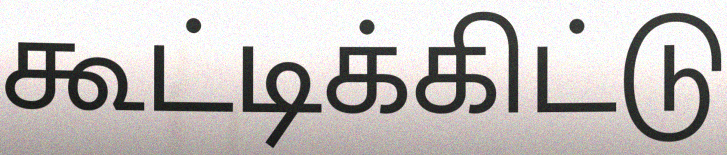
கூட்டிக்கிட்டு